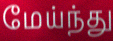
மேய்ந்து